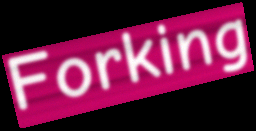
Forking